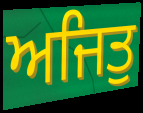
ਅਜਿਤੁ